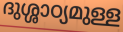
ദുശ്ശാഠ്യമുള്ള